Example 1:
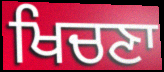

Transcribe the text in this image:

ਖਿਚਣਾ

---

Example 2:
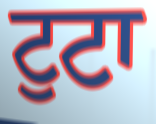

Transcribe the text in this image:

ਟੁਟਾ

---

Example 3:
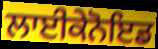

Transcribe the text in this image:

ਲਾਈਕੇਨੋਇਡ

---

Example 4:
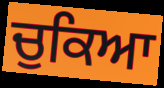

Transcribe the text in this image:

ਚੁਕਿਆ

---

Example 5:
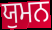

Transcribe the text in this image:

ਯੁਮਨ